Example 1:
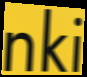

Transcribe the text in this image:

nki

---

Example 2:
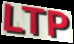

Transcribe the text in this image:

LTP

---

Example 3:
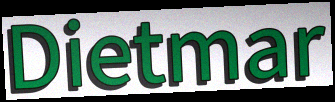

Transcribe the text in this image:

Dietmar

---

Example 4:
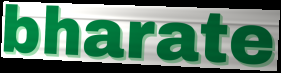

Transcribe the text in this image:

bharate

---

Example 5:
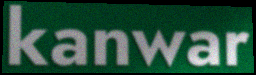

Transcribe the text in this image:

kanwar